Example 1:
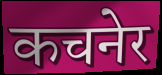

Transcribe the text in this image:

कचनेर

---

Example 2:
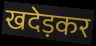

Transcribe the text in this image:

खदेड़कर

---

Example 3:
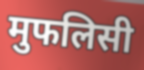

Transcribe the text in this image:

मुफलिसी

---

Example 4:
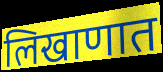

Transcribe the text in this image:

लिखाणात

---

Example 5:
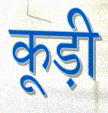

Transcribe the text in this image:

कूड़ी